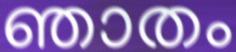
ഞാതം